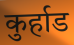
कुर्हाड